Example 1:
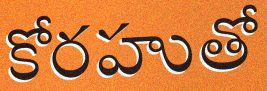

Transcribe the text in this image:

కోరహుతో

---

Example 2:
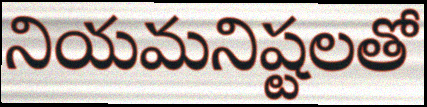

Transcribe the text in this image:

నియమనిష్టలతో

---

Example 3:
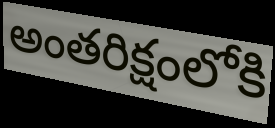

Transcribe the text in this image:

అంతరిక్షంలోకి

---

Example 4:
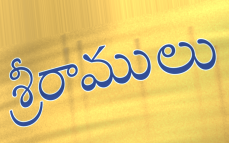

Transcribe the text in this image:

శ్రీరాములు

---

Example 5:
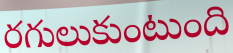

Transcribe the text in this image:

రగులుకుంటుంది